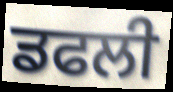
ਡਫਲੀ